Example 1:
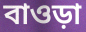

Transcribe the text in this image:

বাওড়া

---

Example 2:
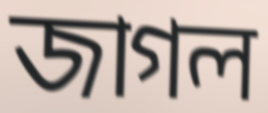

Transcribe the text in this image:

জাগল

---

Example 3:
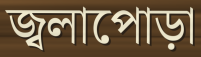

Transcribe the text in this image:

জ্বলাপোড়া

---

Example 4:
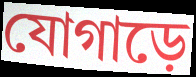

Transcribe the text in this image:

যোগাড়ে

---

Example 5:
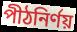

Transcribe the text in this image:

পীঠনির্ণয়